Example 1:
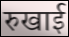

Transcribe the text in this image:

रुखाई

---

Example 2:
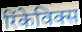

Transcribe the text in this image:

रिंकेविक्स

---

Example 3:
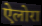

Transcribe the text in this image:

ऐलोरा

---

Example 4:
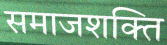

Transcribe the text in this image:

समाजशक्ति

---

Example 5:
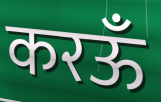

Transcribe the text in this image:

करऊँ